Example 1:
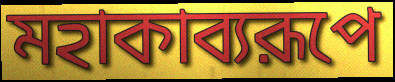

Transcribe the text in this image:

মহাকাব্যরূপে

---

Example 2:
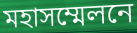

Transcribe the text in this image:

মহাসম্মেলনে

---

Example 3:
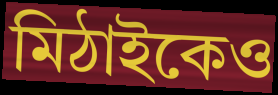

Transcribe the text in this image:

মিঠাইকেও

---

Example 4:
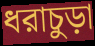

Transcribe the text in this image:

ধরাচুড়া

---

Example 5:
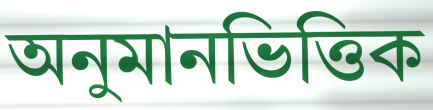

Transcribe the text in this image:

অনুমানভিত্তিক